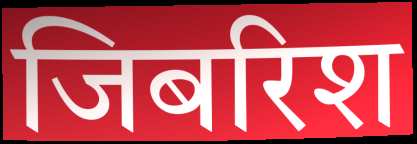
जिबरिश